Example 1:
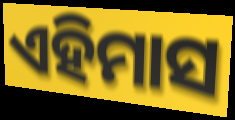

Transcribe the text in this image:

ଏହିମାସ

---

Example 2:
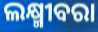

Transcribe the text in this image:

ଲକ୍ଷ୍ମୀବରା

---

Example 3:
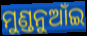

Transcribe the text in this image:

ମୁଣ୍ଡନୁଆଁଇ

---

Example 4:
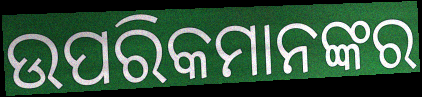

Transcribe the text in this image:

ଉପରିକମାନଙ୍କର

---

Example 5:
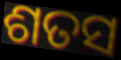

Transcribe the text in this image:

ଶତସ